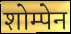
शोम्पेन